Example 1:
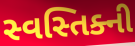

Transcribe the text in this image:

સ્વસ્તિક્ની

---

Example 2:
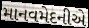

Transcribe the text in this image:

માનવમેદનીએ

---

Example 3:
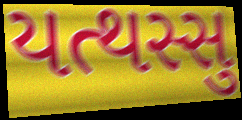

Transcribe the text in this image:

યત્થસ્સુ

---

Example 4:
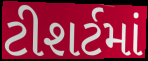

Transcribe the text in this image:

ટીશર્ટમાં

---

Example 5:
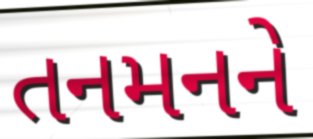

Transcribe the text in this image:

તનમનને